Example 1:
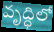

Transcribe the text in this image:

వృద్ధిలో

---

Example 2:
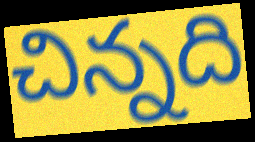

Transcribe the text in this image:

చిన్నది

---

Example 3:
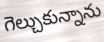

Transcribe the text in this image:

గెల్చుకున్నాను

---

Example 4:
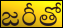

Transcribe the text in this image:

జరీతో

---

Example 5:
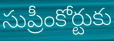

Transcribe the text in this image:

సుప్రీంకోర్టుకు